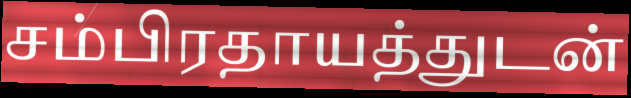
சம்பிரதாயத்துடன்